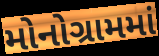
મોનોગ્રામમાં